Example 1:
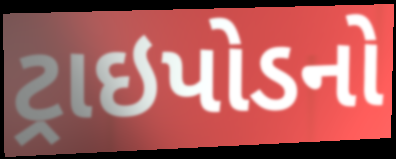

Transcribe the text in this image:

ટ્રાઇપોડનો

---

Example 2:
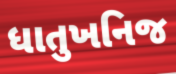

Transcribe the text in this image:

ધાતુખનિજ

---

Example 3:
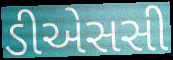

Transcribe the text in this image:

ડીએસસી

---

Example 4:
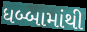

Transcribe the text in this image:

ધબ્બામાંથી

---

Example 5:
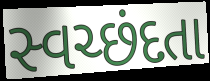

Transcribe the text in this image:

સ્વચ્છંદતા